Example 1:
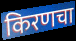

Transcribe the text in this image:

किरणचा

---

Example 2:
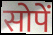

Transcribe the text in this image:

सोपें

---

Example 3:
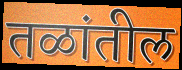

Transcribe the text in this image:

तळांतील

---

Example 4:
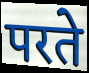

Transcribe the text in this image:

परते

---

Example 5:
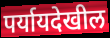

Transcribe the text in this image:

पर्यायदेखील